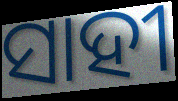
ସାହୀ